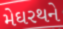
મેઘરથને